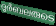
ദുർബലരുടെ